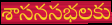
శాసనసభలకు